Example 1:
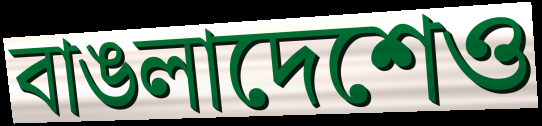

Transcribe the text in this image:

বাঙলাদেশেও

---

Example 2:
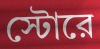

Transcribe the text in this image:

স্টোরে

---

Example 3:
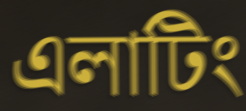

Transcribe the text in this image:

এলাটিং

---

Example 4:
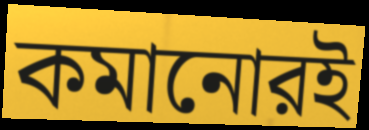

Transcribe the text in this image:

কমানোরই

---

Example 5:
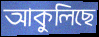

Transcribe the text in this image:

আকুলিছে